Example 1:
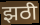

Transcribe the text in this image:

झठी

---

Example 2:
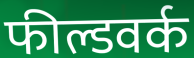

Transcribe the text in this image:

फील्डवर्क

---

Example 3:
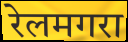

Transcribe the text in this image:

रेलमगरा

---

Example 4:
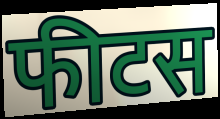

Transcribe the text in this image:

फीटस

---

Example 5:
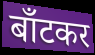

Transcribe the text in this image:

बाँटकर